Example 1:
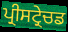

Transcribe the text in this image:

ਪ੍ਰੀਸਟ੍ਰੇਚਡ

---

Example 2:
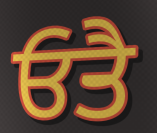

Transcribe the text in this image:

ਓਤੈ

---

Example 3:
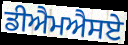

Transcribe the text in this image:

ਡੀਐਮਐਸਏ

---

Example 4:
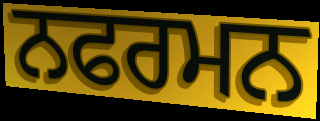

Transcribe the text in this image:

ਨਫਰਮਨ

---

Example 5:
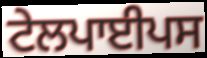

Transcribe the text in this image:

ਟੇਲਪਾਈਪਸ